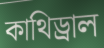
কাথিড্রাল